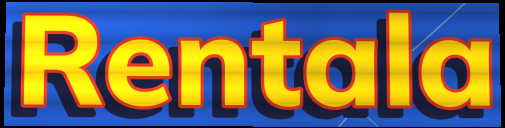
Rentala